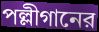
পল্লীগানের